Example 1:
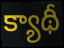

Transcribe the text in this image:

క్యాథీ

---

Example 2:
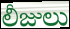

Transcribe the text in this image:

లీజులు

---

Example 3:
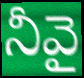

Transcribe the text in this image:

నీవై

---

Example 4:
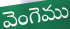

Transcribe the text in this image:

వెంగెము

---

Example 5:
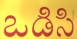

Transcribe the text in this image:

ఒడిసి